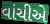
વાંચીએ